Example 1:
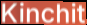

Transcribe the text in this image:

Kinchit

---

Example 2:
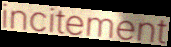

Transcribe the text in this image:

incitement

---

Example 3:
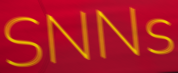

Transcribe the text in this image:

SNNs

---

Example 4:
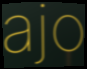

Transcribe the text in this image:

ajo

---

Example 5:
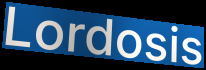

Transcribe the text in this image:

Lordosis